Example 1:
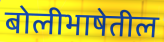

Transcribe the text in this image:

बोलीभाषेतील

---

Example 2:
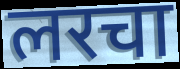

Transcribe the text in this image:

लरचा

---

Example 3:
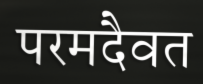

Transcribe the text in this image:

परमदैवत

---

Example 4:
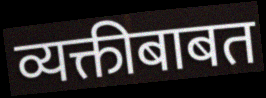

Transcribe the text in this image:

व्यक्तीबाबत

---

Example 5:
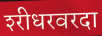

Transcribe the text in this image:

श्रीधरवरदा